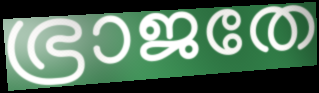
ഭ്രാജതേ